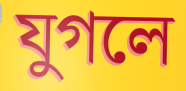
যুগলে